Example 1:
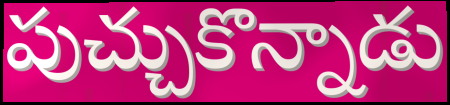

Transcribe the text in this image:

పుచ్చుకొన్నాడు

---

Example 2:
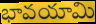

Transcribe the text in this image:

భావయామి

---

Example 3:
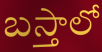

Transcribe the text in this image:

బస్తాలో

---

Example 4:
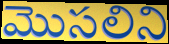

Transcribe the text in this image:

మొసలిని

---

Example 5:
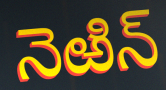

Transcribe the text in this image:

నెఱిన్